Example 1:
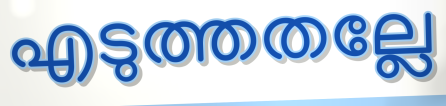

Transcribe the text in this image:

എടുത്തതല്ലേ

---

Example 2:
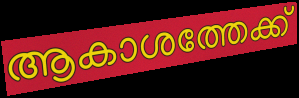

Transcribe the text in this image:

ആകാശത്തേക്ക്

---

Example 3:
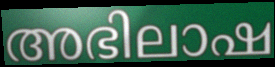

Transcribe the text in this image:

അഭിലാഷ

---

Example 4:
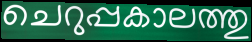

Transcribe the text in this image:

ചെറുപ്പകാലത്തു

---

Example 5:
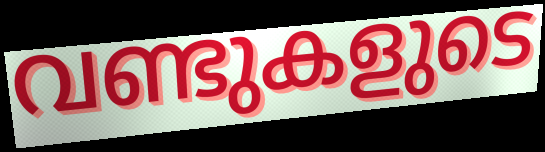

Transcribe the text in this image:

വണ്ടുകളുടെ